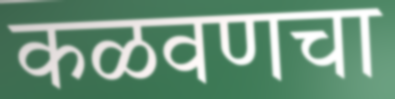
कळवणचा